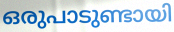
ഒരുപാടുണ്ടായി